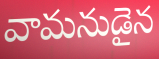
వామనుడైన